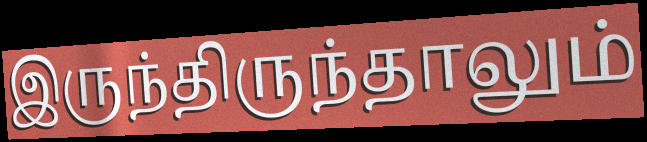
இருந்திருந்தாலும்